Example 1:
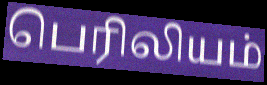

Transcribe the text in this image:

பெரிலியம்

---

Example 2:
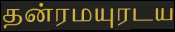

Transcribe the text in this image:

தன்ரமயுரடய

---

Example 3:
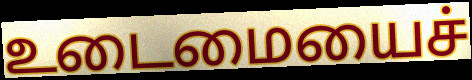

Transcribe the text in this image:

உடைமையைச்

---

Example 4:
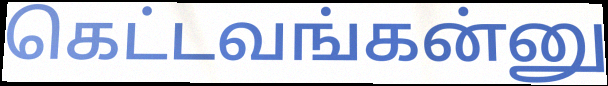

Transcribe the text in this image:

கெட்டவங்கன்னு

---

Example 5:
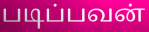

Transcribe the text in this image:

படிப்பவன்